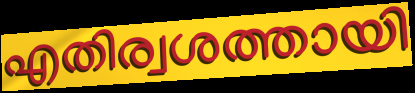
എതിര്വശത്തായി